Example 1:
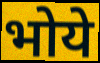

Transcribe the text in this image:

भोये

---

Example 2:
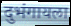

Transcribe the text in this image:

दुभंगायला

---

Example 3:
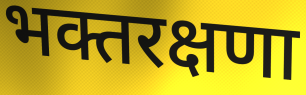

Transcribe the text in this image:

भक्तरक्षणा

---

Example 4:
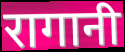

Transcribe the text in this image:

रागानी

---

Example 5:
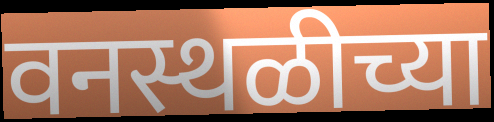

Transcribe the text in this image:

वनस्थळीच्या